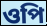
ওপি